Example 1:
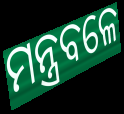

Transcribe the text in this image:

ମନ୍ତ୍ରବଳେ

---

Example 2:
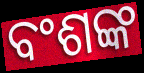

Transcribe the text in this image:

ବଂଶଙ୍କ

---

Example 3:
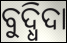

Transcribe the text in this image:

ବୁଦ୍ଧିଦା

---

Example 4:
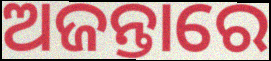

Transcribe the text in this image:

ଅଜନ୍ତାରେ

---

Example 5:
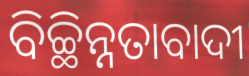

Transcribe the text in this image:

ବିଚ୍ଛିନ୍ନତାବାଦୀ